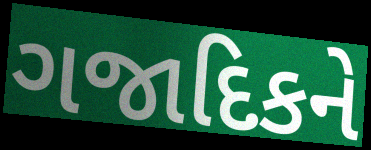
ગજાદિકને